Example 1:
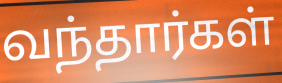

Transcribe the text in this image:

வந்தார்கள்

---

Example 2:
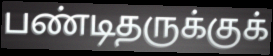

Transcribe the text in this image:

பண்டிதருக்குக்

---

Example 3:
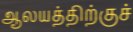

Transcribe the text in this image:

ஆலயத்திற்குச்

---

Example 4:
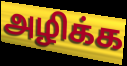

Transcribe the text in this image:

அழிக்க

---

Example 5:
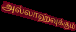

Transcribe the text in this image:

அல்லாஹ்வுக்கும்